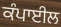
ਕੰਪਾਈਲ